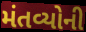
મંતવ્યોની